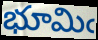
భూమిఁ